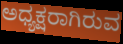
ಅಧ್ಯಕ್ಷರಾಗಿರುವ